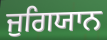
ਜੁਗਿਯਾਨ